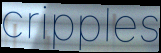
cripples